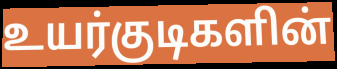
உயர்குடிகளின்